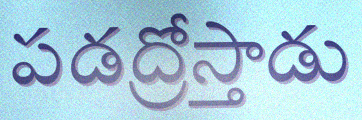
పడద్రోస్తాడు